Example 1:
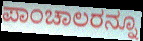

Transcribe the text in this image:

ಪಾಂಚಾಲರನ್ನೂ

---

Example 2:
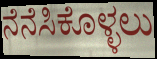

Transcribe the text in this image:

ನೆನೆಸಿಕೊಳ್ಳಲು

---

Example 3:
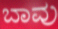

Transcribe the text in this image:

ಬಾವು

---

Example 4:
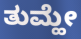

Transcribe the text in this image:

ತುಮ್ಹೇ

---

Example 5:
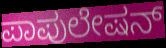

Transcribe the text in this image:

ಪಾಪುಲೇಷನ್